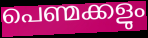
പെണ്മക്കളും